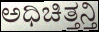
ಅಧಿಚಿತ್ತನ್ತಿ